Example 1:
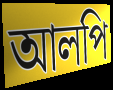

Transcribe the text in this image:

আলপি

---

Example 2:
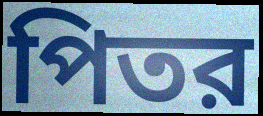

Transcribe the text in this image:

পিতর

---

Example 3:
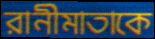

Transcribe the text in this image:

রানীমাতাকে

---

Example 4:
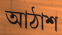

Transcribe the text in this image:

আঠাশ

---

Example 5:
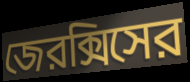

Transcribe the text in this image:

জেরক্সিসের